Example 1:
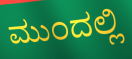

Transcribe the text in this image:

ಮುಂದಲ್ಲಿ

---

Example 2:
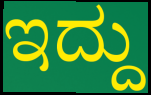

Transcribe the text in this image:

ಇದ್ದು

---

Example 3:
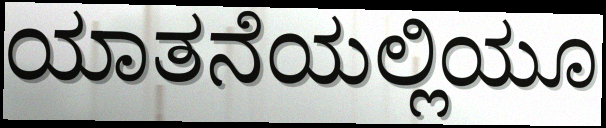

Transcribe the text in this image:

ಯಾತನೆಯಲ್ಲಿಯೂ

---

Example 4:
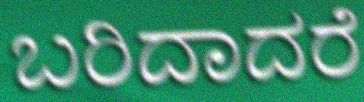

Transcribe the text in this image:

ಬರಿದಾದರೆ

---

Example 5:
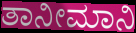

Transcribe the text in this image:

ತಾನೀಮಾನಿ